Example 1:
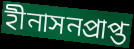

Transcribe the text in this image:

হীনাসনপ্রাপ্ত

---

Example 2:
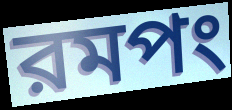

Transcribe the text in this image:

রমপং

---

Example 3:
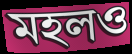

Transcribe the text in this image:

মহলও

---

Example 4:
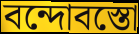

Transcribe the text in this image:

বন্দোবস্তো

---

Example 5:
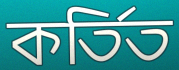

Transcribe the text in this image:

কর্তিত